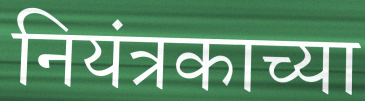
नियंत्रकाच्या